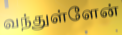
வந்துள்ளேன்